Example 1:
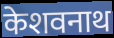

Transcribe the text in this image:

केशवनाथ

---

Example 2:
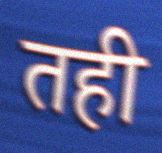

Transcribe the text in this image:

तही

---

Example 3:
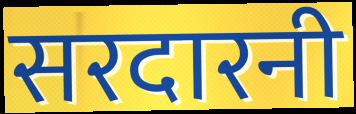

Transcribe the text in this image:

सरदारनी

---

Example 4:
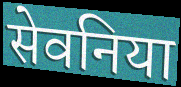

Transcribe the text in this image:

सेवनिया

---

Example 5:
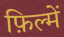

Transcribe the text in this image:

फ़िल्में